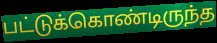
பட்டுக்கொண்டிருந்த